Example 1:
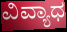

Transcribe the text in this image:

ವಿವ್ಯಾಧ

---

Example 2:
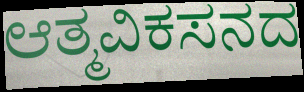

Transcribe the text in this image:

ಆತ್ಮವಿಕಸನದ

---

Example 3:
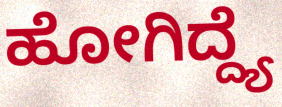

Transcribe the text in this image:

ಹೋಗಿದ್ದ್ಯೆ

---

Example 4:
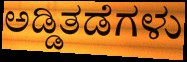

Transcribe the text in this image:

ಅಡ್ಡಿತಡೆಗಳು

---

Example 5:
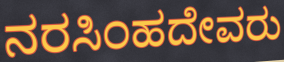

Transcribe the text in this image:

ನರಸಿಂಹದೇವರು